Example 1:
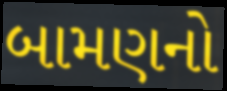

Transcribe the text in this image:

બામણનો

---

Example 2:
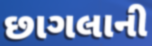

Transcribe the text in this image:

છાગલાની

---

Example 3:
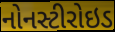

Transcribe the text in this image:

નોનસ્ટીરોઇડ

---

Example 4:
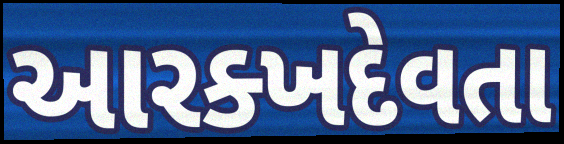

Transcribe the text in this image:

આરક્ખદેવતા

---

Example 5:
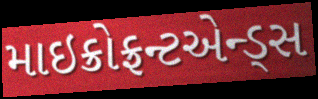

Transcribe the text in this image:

માઇક્રોફ્રન્ટએન્ડ્સ